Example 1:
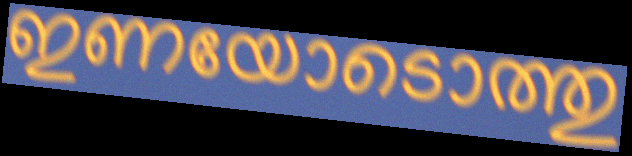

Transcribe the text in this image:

ഇണയോടൊത്തു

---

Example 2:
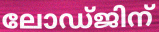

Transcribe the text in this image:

ലോഡ്ജിന്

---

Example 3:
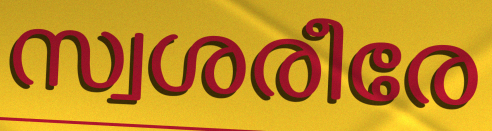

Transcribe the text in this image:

സ്വശരീരേ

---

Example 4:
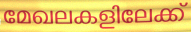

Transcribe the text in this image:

മേഖലകളിലേക്ക്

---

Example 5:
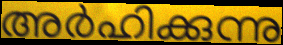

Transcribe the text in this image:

അർഹിക്കുന്നു